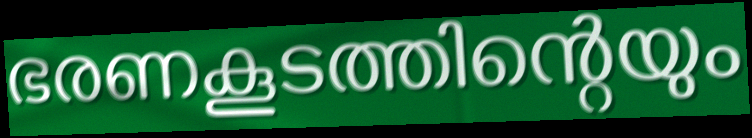
ഭരണകൂടത്തിന്റെയും